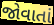
જોવાતાં